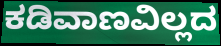
ಕಡಿವಾಣವಿಲ್ಲದ